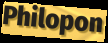
Philopon